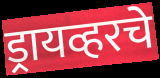
ड्रायव्हरचे